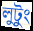
লুটুং